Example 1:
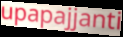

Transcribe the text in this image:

upapajjanti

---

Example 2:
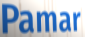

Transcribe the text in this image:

Pamar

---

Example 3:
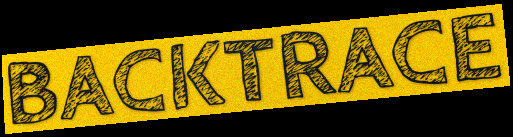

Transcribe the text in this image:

BACKTRACE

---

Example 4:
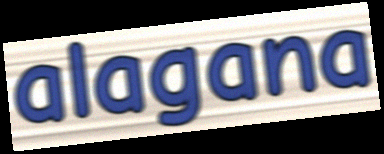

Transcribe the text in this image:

alagana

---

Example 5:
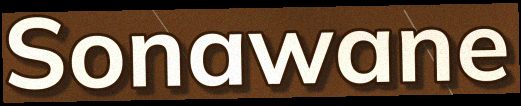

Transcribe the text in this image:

Sonawane